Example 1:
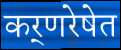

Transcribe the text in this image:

कर्णरेषेत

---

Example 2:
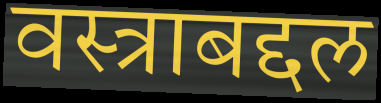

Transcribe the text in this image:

वस्त्राबद्दल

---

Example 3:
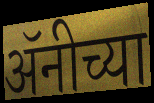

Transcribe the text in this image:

ॲनीच्या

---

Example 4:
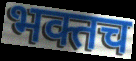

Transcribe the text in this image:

भक्तच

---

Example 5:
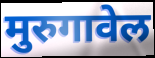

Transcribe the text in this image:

मुरुगावेल